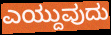
ಎಯ್ದುವುದು